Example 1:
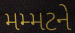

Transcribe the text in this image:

મમ્મટને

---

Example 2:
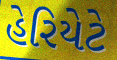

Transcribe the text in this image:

હેરિયેટે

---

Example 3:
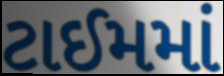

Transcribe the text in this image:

ટાઈમમાં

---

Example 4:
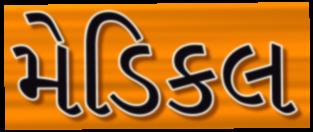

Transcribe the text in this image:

મેડિકલ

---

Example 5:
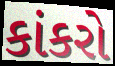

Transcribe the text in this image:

કાંકરો